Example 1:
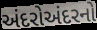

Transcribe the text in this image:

અંદરોઅંદરનો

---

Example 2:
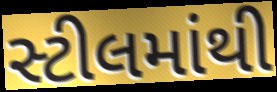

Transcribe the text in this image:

સ્ટીલમાંથી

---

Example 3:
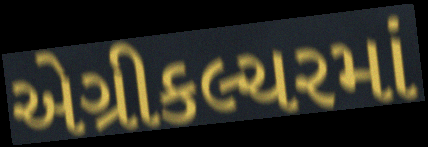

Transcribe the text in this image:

એગ્રીકલ્ચરમાં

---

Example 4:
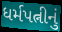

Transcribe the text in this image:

ધર્મપત્નીનું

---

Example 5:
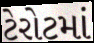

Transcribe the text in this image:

ટેરોટમાં